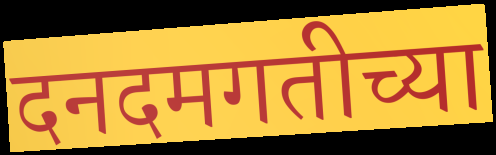
दनदमगतीच्या